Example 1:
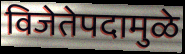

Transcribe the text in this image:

विजेतेपदामुळे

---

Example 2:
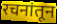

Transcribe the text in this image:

रचनांतून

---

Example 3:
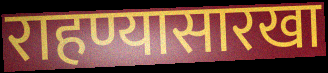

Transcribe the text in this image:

राहण्यासारखा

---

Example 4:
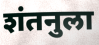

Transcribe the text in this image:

शंतनुला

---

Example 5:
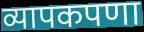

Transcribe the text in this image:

व्यापकपणा